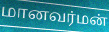
மானவர்மன்